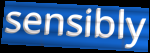
sensibly